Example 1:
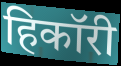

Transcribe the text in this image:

हिकॉरी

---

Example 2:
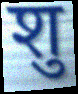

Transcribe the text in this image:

शु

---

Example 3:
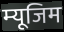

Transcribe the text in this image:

म्यूजिम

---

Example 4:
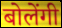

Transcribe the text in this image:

बोलेंगी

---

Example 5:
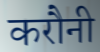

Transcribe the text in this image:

करौनी